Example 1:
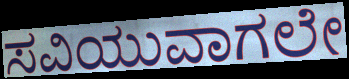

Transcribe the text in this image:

ಸವಿಯುವಾಗಲೇ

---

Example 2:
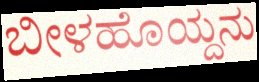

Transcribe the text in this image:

ಬೀಳಹೊಯ್ದನು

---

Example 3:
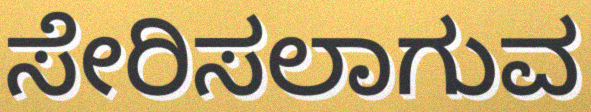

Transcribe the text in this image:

ಸೇರಿಸಲಾಗುವ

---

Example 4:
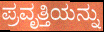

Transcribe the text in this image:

ಪ್ರವೃತ್ತಿಯನ್ನು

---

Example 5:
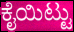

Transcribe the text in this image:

ಕೈಯಿಟ್ಟು